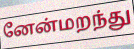
னேன்மறந்து